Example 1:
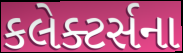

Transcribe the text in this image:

કલેક્ટર્સના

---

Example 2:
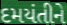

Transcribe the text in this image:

દમયંતીને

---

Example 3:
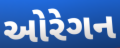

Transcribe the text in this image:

ઓરેગન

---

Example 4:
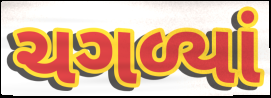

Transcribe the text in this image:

ચગળ્યાં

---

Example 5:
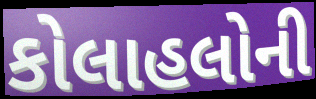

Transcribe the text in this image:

કોલાહલોની